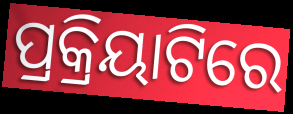
ପ୍ରକ୍ରିୟାଟିରେ